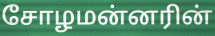
சோழமன்னரின்